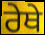
ਰੇਥੇ